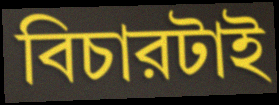
বিচারটাই